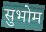
सुभोम